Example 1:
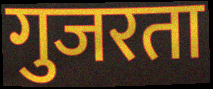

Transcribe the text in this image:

गुजरता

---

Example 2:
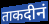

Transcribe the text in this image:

ताकदीनं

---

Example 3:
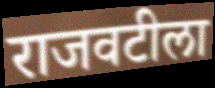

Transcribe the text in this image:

राजवटीला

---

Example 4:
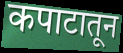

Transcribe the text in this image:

कपाटातून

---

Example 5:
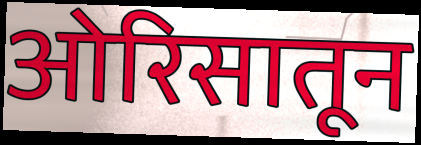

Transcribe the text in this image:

ओरिसातून